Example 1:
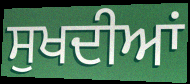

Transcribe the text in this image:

ਸੁਖਦੀਆਂ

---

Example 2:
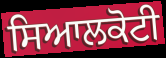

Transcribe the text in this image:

ਸਿਆਲਕੋਟੀ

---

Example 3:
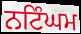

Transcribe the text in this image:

ਨਟਿੰਘਮ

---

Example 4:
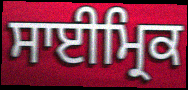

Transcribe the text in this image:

ਸਾਈਮ੍ਰਿਕ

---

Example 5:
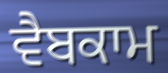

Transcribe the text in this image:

ਵੈਬਕਾਮ